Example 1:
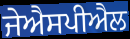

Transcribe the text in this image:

ਜੇਐਸਪੀਐਲ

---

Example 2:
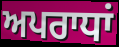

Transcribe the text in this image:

ਅਪਰਾਧਾਂ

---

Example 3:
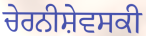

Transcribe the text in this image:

ਚੇਰਨੀਸ਼ੇਵਸਕੀ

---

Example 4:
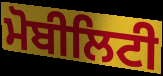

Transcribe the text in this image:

ਮੋਬੀਲਿਟੀ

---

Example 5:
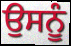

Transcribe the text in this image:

ਉਸਨੂੰ